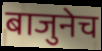
बाजुनेच